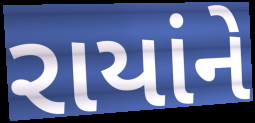
રાયાંને